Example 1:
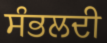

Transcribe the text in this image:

ਸੰਭਲਦੀ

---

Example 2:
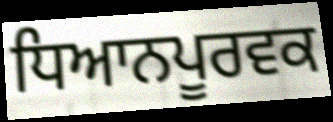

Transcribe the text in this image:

ਧਿਆਨਪੂਰਵਕ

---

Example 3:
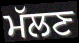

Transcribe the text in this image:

ਮੱਲਣ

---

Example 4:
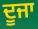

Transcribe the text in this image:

ਦੂਜਾ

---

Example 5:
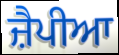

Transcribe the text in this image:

ਜ਼ੈਪੀਆ